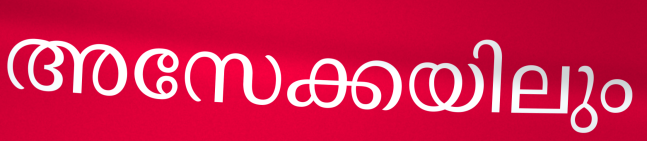
അസേക്കയിലും